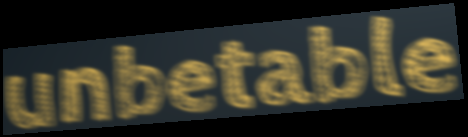
unbetable